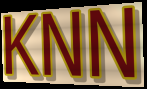
KNN